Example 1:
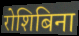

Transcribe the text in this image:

रोशिबिना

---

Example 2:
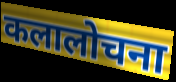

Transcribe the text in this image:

कलालोचना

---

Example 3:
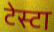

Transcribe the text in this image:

टेस्टा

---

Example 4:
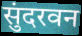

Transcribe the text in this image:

सुंदरवन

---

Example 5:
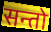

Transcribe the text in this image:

सन्तो